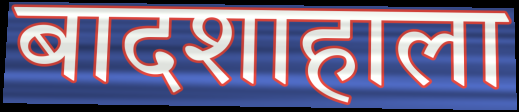
बादशाहाला